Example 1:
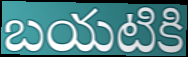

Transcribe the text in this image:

బయటికి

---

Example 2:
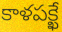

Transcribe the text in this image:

కాళపక్ఖే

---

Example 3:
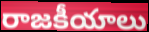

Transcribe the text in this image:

రాజకీయాలు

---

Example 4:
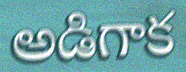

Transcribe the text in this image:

అడిగాక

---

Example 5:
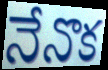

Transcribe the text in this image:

నేనొక